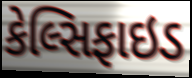
કેલ્સિફાઇડ